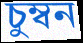
চুম্বন